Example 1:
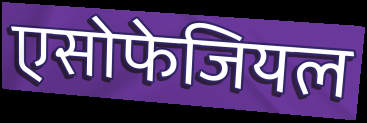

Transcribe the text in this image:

एसोफेजियल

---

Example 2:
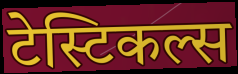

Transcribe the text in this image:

टेस्टिकल्स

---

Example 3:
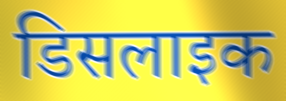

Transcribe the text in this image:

डिसलाइक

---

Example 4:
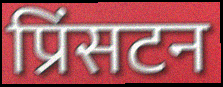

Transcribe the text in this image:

प्रिंसटन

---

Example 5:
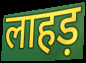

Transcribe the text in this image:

लाहड़